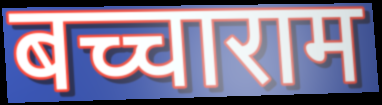
बच्चाराम